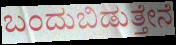
ಬಂದುಬಿಡುತ್ತೇನೆ